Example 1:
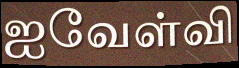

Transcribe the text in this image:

ஐவேள்வி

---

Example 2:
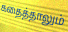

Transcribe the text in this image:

கதைத்தாலும்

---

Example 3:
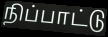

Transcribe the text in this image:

நிப்பாட்டு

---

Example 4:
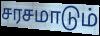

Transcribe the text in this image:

சரசமாடும்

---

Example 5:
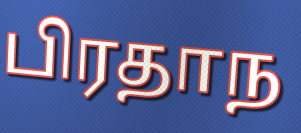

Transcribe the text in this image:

பிரதாந